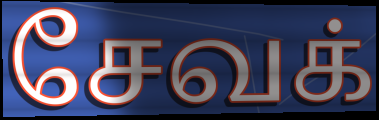
சேவக்